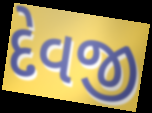
દેવજી